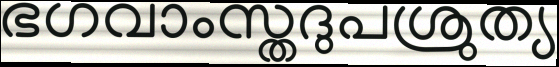
ഭഗവാംസ്തദുപശ്രുത്യ